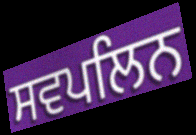
ਸਵਪਲਿਨ